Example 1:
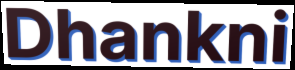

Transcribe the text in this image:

Dhankni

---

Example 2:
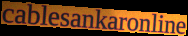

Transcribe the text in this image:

cablesankaronline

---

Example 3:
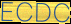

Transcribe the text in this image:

ECDC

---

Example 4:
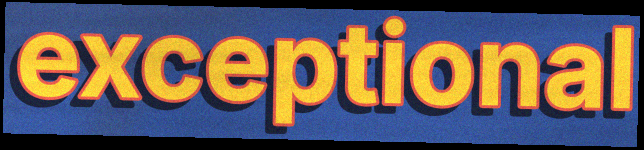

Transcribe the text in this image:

exceptional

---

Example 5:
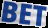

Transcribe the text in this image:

BET